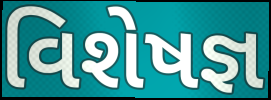
વિશેષજ્ઞ